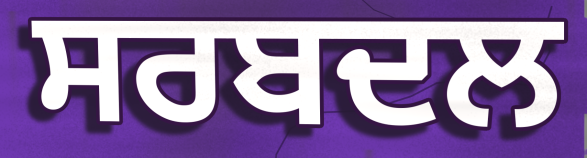
ਸਰਬਦਲ